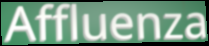
Affluenza